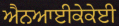
ਐਨਆਈਕੇਕੇਈ